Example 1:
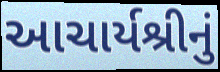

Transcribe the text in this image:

આચાર્યશ્રીનું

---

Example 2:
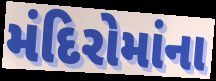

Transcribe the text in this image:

મંદિરોમાંના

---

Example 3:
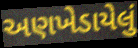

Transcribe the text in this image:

અણખેડાયેલું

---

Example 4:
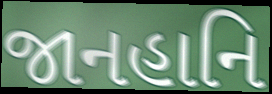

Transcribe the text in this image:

જાનહાનિ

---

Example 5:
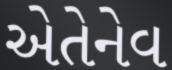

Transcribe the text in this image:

એતેનેવ